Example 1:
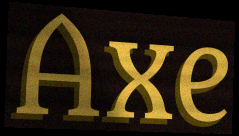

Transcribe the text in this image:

Axe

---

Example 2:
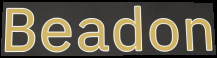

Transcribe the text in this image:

Beadon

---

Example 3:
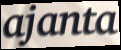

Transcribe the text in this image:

ajanta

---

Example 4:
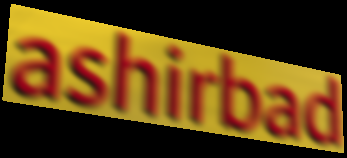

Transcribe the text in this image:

ashirbad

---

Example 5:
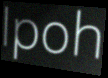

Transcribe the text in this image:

Ipoh